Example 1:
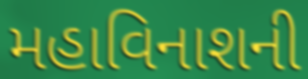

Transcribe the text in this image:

મહાવિનાશની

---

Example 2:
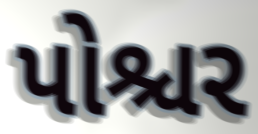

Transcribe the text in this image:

પોશ્ચર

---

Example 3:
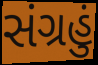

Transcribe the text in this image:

સંગ્રહું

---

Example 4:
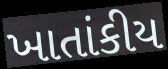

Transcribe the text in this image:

ખાતાંકીય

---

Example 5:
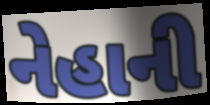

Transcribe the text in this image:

નેહાની